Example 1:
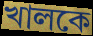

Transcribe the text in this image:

খালকে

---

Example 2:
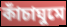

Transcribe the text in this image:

কাঁচাঘুমে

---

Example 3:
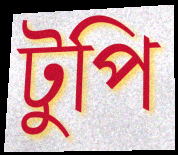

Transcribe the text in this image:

টুপি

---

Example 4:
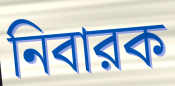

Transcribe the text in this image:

নিবারক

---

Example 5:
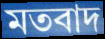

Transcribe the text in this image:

মতবাদ